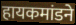
हायकमांडने